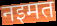
नइमत